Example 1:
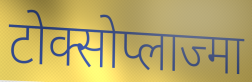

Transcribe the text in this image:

टोक्सोप्लाज्मा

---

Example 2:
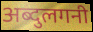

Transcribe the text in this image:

अब्दुलगनी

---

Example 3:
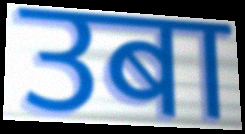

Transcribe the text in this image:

उबा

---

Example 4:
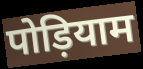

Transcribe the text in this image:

पोड़ियाम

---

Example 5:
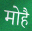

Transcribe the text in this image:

मोहै